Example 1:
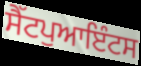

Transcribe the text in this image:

ਸੈੱਟਪੁਆਇੰਟਸ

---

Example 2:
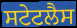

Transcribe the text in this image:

ਸਟੇਟਲੈਸ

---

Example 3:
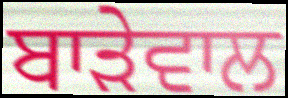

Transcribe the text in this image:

ਬਾੜੇਵਾਲ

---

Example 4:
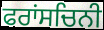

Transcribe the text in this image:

ਫਰਾਂਸਚਿਨੀ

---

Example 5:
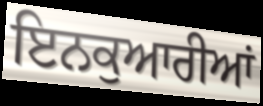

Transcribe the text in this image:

ਇਨਕੁਆਰੀਆਂ